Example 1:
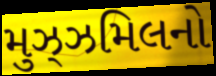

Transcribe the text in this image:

મુઝ્ઝમિલનો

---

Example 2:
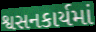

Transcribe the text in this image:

શ્વસનકાર્યમાં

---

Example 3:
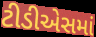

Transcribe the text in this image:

ટીડીએસમાં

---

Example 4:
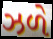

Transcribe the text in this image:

ઝળે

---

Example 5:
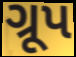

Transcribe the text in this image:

ગ્રૂપ